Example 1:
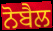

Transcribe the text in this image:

ਨੋਬੈਲ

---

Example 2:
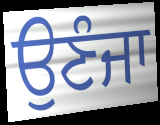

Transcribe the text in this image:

ਉਣੰਜਾ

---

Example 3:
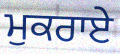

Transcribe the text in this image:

ਮੁਕਰਾਏ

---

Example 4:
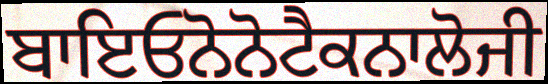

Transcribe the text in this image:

ਬਾਇਓਨੋਨੋਟੈਕਨਾਲੋਜੀ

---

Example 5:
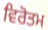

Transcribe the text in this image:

ਵਿਰੋਤਮ